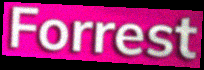
Forrest